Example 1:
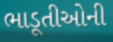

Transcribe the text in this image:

ભાડૂતીઓની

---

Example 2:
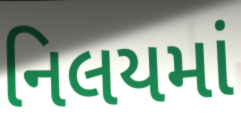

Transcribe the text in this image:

નિલયમાં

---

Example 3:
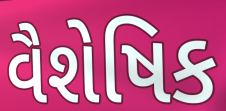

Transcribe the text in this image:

વૈશેષિક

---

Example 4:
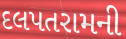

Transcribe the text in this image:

દલપતરામની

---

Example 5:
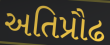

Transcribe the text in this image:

અતિપ્રૌઢ